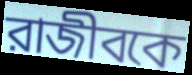
রাজীবকে